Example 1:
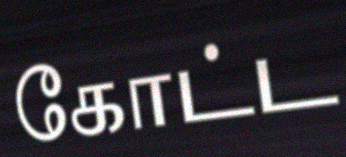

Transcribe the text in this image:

கோட்ட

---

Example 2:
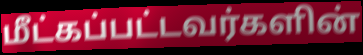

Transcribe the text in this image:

மீட்கப்பட்டவர்களின்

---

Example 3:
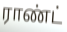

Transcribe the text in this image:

ராண்ட்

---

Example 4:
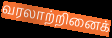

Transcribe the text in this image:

வரலாற்றினைக்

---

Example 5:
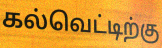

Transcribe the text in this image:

கல்வெட்டிற்கு